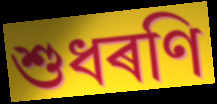
শুধৰণি